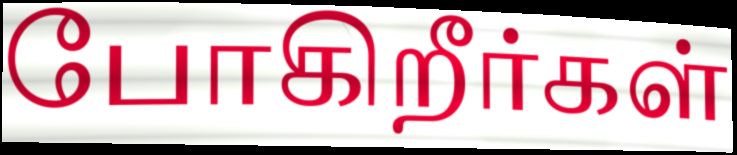
போகிறீர்கள்